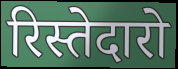
रिस्तेदारो